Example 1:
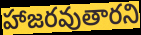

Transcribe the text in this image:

హాజరవుతారని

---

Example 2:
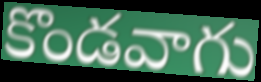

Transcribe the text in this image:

కొండవాగు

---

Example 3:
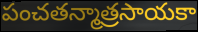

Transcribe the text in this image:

పంచతన్మాత్రసాయకా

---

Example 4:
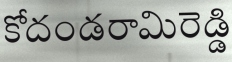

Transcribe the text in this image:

కోదండరామిరెడ్డి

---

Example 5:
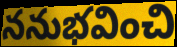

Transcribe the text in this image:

ననుభవించి